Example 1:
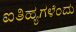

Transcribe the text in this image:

ಐತಿಹ್ಯಗಳೆಂದು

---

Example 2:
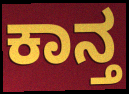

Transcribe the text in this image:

ಕಾನ್ತ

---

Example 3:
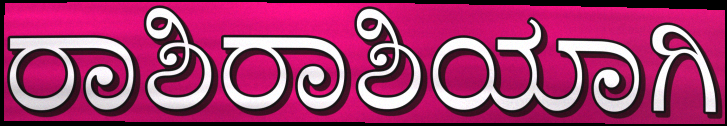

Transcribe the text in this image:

ರಾಶಿರಾಶಿಯಾಗಿ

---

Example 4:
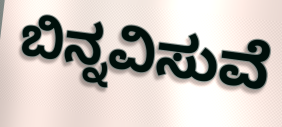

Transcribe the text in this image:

ಬಿನ್ನವಿಸುವೆ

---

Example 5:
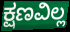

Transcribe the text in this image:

ಕ್ಷಣವಿಲ್ಲ